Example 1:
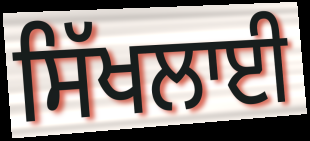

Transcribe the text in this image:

ਸਿੱਖਲਾਈ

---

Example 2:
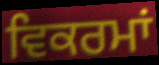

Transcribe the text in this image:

ਵਿਕਰਮਾਂ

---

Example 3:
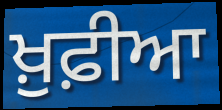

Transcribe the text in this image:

ਖ਼ੁਫ਼ੀਆ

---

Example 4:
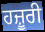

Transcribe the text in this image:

ਹਜ਼ੂਰੀ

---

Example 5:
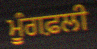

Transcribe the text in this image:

ਮੂੰਗਫ਼ਲੀ